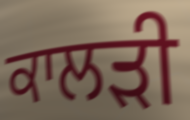
ਕਾਲੜੀ